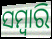
ସମ୍ବାରି